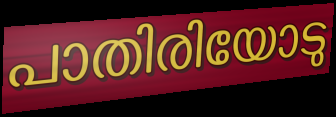
പാതിരിയോടു